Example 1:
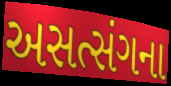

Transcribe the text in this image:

અસત્સંગના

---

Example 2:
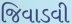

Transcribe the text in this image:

જિવાડવી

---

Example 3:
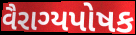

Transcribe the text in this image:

વૈરાગ્યપોષક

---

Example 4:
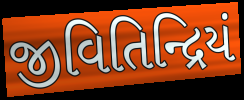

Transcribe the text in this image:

જીવિતિન્દ્રિયં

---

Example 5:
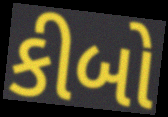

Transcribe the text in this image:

કીબો